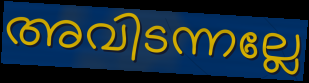
അവിടന്നല്ലേ